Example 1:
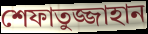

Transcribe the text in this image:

শেফাতুজ্জাহান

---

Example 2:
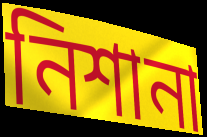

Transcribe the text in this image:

নিশানা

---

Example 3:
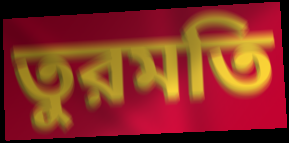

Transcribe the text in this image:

তুরমতি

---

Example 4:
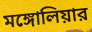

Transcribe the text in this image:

মঙ্গোলিয়ার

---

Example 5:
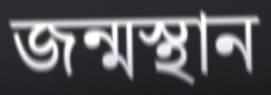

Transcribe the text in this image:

জন্মস্থান